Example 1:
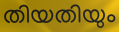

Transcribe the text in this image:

തിയതിയും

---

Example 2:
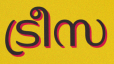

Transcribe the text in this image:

ട്രീസ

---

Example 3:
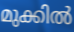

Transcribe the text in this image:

മുക്കിൽ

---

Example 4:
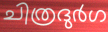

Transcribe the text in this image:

ചിത്രദുർഗ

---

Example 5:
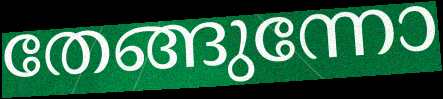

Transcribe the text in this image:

തേങ്ങുന്നോ